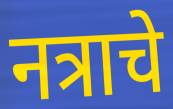
नत्राचे